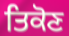
ਤਿਕੋਣ